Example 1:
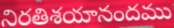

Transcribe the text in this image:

నిరతిశయానందము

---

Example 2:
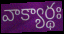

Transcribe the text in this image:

వాక్యార్థః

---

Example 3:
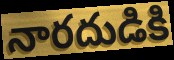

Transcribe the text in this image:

నారదుడికి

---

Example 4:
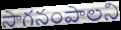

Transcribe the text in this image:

సాగనంపాలని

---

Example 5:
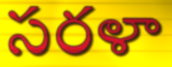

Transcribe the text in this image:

సరళా